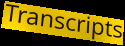
Transcripts